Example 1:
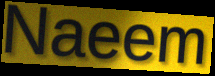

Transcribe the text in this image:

Naeem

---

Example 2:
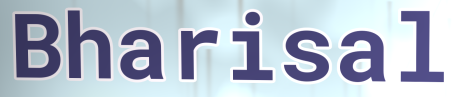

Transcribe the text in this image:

Bharisal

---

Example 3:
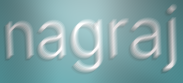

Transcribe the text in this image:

nagraj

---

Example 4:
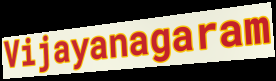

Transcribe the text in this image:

Vijayanagaram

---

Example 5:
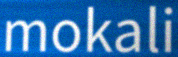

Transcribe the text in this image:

mokali